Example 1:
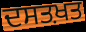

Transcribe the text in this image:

ਦਸਤ਼ਖਤ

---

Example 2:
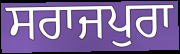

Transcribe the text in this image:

ਸਰਾਜਪੁਰਾ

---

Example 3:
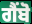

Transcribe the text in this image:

ਗੈਂਬੋ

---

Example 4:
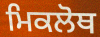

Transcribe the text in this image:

ਮਿਕਲੋਥ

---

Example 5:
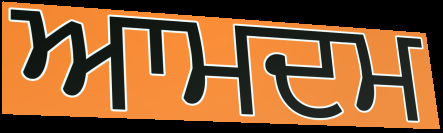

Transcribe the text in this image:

ਆਮਦਮ